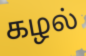
கழல்